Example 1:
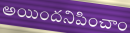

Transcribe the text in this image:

అయిందనిపించాం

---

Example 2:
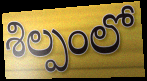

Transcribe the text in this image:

శిల్పంలో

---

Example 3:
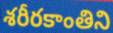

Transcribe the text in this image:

శరీరకాంతిని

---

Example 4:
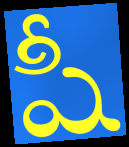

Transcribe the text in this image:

షీ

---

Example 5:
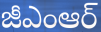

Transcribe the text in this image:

జీఎంఆర్